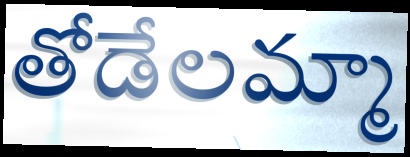
తోడేలమ్మా